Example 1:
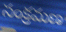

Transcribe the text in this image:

సంక్రమణ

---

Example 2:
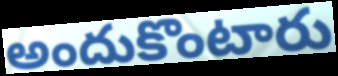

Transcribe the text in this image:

అందుకొంటారు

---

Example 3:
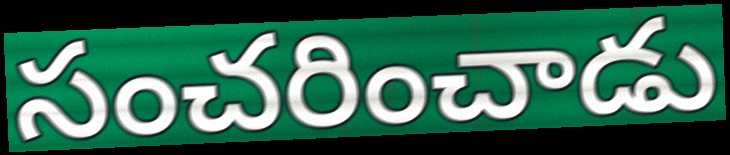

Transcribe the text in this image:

సంచరించాడు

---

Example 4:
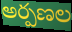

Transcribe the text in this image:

అర్పణల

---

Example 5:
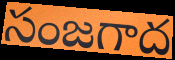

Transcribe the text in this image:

సంజగాద